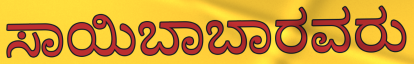
ಸಾಯಿಬಾಬಾರವರು